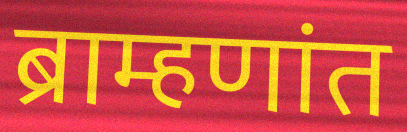
ब्राम्हणांत